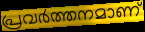
പ്രവർത്തനമാണ്